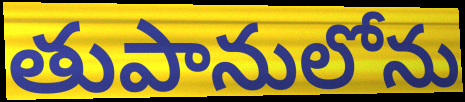
తుపానులోను